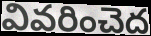
వివరించెద